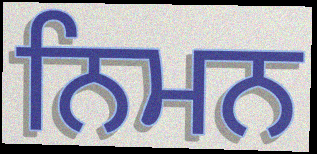
ਨਿਮਨ